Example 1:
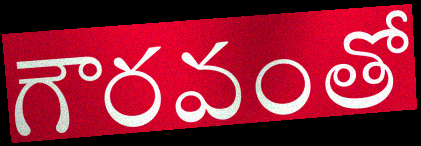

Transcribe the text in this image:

గౌరవంతో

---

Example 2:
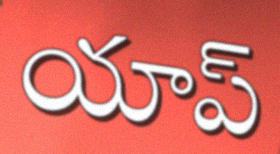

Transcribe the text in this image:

యాప్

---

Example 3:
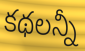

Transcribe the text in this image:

కథలన్నీ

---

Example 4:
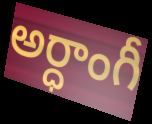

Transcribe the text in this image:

అర్ధాంగీ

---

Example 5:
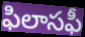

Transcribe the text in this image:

ఫిలాసఫీ